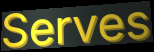
Serves